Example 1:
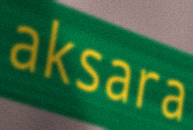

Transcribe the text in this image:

aksara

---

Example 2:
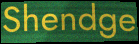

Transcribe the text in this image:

Shendge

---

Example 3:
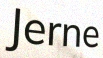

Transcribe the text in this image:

Jerne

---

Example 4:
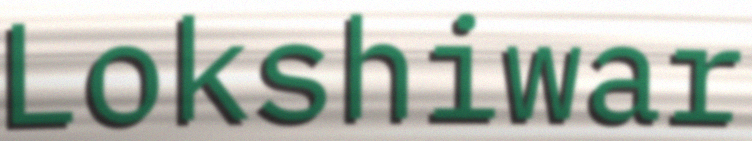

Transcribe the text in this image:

Lokshiwar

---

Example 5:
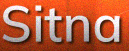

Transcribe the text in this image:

Sitna